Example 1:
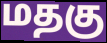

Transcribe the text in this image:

மதகு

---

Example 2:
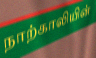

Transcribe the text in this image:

நாற்காலியின்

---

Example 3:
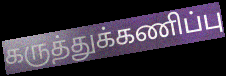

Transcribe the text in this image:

கருத்துக்கணிப்பு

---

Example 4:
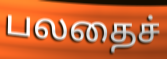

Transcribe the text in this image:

பலதைச்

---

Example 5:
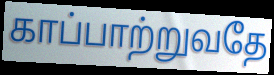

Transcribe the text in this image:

காப்பாற்றுவதே